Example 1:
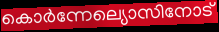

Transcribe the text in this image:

കൊർന്നേല്യൊസിനോട്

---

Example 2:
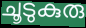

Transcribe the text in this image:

ചൂടുകുരു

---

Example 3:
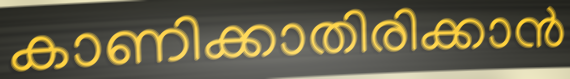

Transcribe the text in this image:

കാണിക്കാതിരിക്കാൻ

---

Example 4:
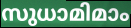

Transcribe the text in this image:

സുധാമിമാം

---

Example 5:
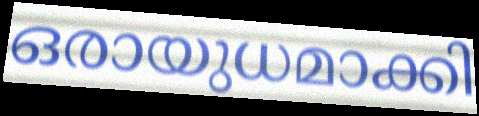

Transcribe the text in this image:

ഒരായുധമാക്കി